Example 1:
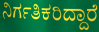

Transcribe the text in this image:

ನಿರ್ಗತಿಕರಿದ್ದಾರೆ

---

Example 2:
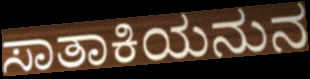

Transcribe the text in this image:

ಸಾತಾಕಿಯನುನ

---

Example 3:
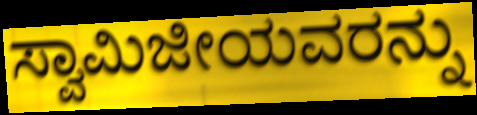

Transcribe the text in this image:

ಸ್ವಾಮಿಜೀಯವರನ್ನು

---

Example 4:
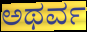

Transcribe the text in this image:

ಅಥರ್ವ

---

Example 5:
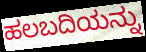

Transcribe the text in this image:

ಹಲಬದಿಯನ್ನು